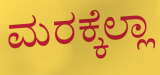
ಮರಕ್ಕೆಲ್ಲಾ